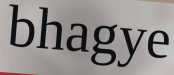
bhagye